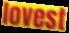
lovest